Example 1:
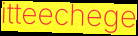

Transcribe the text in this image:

itteechege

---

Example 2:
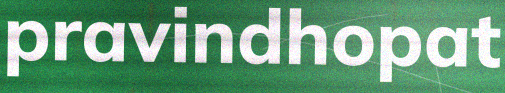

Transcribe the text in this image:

pravindhopat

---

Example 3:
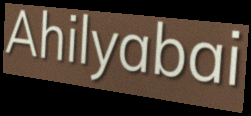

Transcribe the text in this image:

Ahilyabai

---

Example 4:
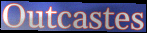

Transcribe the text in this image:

Outcastes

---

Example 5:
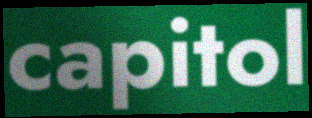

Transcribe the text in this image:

capitol